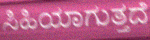
ಸಿಹಿಯಾಗುತ್ತದೆ